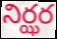
నిర్ఝర